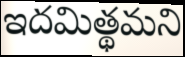
ఇదమిత్థమని